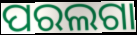
ପରଲଗା